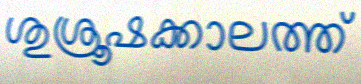
ശുശ്രൂഷക്കാലത്ത്